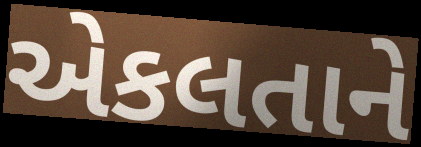
એકલતાને